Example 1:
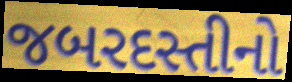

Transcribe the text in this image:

જબરદસ્તીનો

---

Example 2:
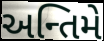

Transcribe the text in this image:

અન્તિમે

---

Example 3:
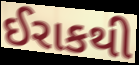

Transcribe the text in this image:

ઈરાકથી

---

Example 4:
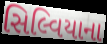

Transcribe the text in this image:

સિલ્વિયાના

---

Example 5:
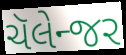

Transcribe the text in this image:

ચૅલેન્જર